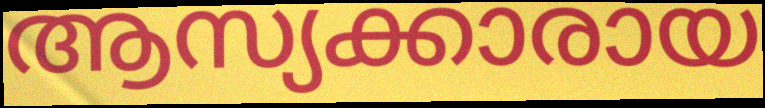
ആസ്യക്കാരായ